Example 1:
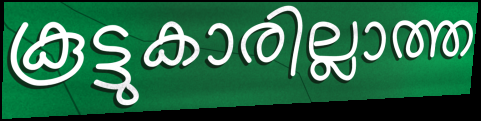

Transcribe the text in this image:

കൂട്ടുകാരില്ലാത്ത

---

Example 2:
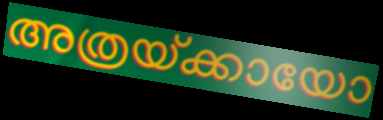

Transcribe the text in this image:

അത്രയ്‌ക്കായോ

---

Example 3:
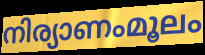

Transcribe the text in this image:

നിര്യാണംമൂലം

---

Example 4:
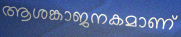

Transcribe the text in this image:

ആശങ്കാജനകമാണ്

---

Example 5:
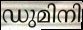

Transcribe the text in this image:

ഡുമിനി